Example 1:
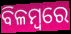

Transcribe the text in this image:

ବିଳମ୍ୱରେ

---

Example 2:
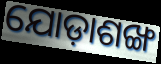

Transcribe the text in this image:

ଯୋଡ଼ାଶଙ୍ଖ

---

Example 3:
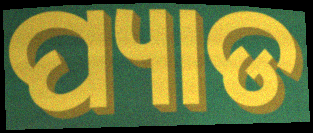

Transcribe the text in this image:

ପ୍ୟାଡ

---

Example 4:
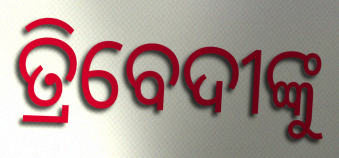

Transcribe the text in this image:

ତ୍ରିବେଦୀଙ୍କୁ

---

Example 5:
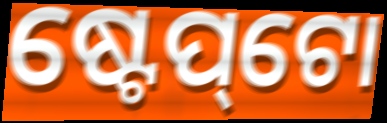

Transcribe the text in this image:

ଷ୍ଟେପ୍‌ଟୋ